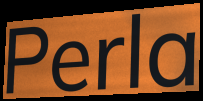
Perla